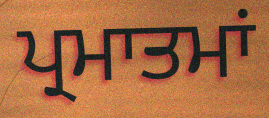
ਪ੍ਰਮਾਤਮਾਂ